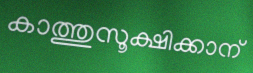
കാത്തുസൂക്ഷിക്കാന്